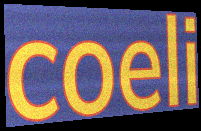
coeli